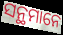
ସନ୍ଥମାନେ